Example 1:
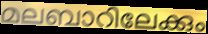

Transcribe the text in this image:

മലബാറിലേക്കും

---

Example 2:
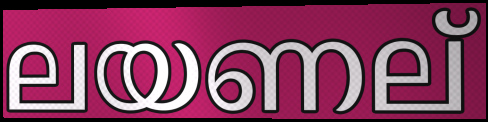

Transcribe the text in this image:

ലയണല്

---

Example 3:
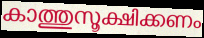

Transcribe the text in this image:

കാത്തുസൂക്ഷിക്കണം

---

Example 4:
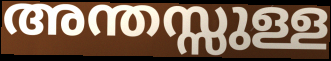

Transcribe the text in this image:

അന്തസ്സുള്ള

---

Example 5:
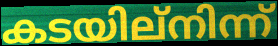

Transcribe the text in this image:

കടയില്നിന്ന്